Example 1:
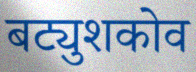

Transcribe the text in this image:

बट्युशकोव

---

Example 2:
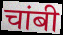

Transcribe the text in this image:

चांबी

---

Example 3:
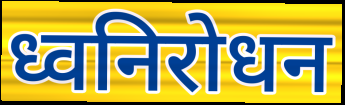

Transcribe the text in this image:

ध्वनिरोधन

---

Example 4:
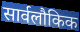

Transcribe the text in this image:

सार्वलौकिक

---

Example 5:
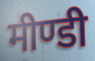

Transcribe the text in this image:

मीण्‍डी